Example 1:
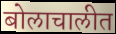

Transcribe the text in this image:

बोलाचालीत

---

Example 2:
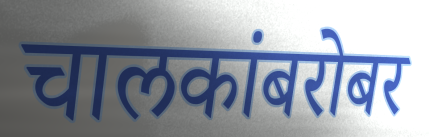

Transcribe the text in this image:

चालकांबरोबर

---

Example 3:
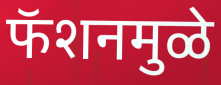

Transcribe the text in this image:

फॅशनमुळे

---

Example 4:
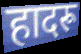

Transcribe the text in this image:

हादरू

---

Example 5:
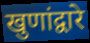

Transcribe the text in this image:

खुणांद्वारे